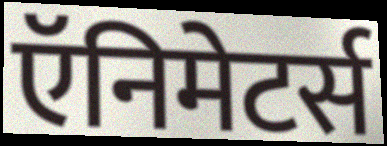
ऍनिमेटर्स